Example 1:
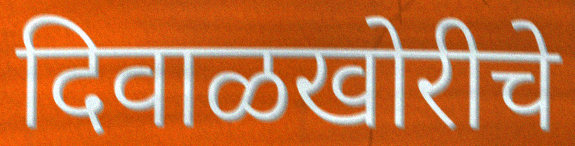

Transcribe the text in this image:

दिवाळखोरीचे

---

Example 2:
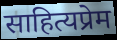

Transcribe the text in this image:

साहित्यप्रेम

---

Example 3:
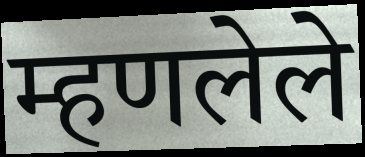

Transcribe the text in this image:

म्हणलेले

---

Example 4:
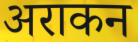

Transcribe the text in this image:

अराकन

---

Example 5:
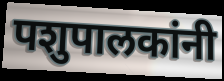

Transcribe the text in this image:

पशुपालकांनी